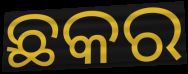
ଛକର